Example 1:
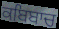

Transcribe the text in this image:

ਕਬਿਬਾਚ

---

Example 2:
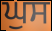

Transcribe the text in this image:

ਘੁਸ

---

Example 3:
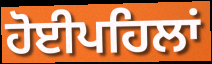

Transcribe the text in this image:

ਹੋਈਪਹਿਲਾਂ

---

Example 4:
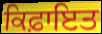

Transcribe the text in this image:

ਕਿਫ਼ਾਇਤ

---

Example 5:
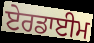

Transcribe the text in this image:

ਏਰਡਾਈਮ